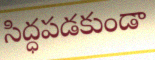
సిద్ధపడకుండా